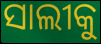
ସାଲୀକୁ